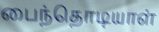
பைந்தொடியாள்